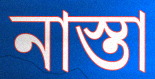
নাস্তা